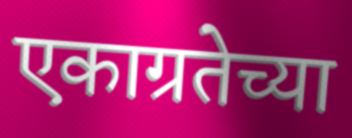
एकाग्रतेच्या